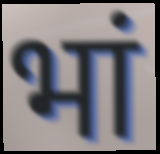
भां